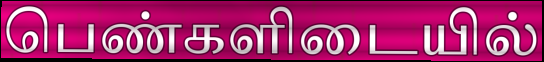
பெண்களிடையில்